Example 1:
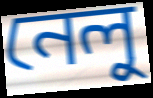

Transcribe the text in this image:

নেলু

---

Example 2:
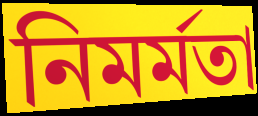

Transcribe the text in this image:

নিমর্মতা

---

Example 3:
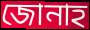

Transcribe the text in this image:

জোনাহ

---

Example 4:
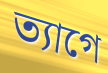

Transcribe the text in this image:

ত্যাগে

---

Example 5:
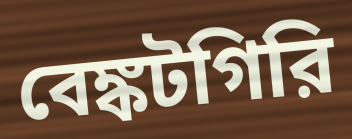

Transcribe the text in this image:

বেঙ্কটগিরি